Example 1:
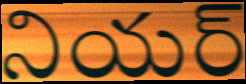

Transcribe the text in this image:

నియర్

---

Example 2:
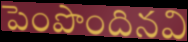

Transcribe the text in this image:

పెంపొందినవి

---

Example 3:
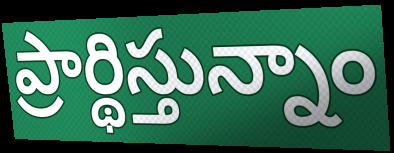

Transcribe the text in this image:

ప్రార్థిస్తున్నాం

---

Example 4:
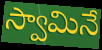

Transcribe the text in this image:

స్వామినే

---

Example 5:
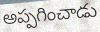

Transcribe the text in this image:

అప్పగించాడు